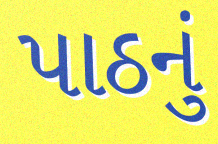
પાઠનું